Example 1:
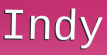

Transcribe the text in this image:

Indy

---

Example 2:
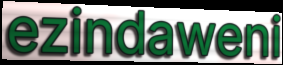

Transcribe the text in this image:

ezindaweni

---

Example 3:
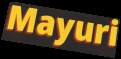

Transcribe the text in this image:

Mayuri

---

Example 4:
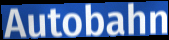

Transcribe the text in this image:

Autobahn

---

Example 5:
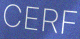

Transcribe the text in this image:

CERF